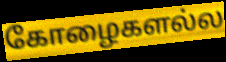
கோழைகளல்ல